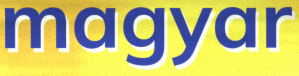
magyar